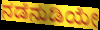
ನಡೆನುಡಿಯೇ